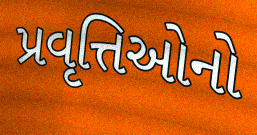
પ્રવૃત્તિઓનો